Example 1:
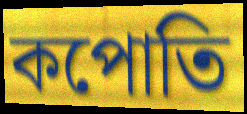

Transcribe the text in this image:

কপোতি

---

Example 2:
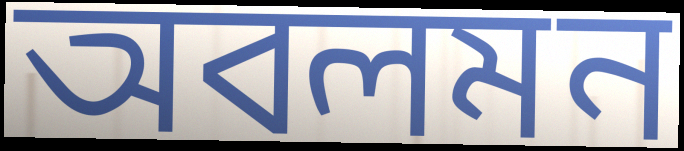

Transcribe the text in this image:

অবলমন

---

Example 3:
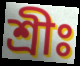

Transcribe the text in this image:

শ্রীঃ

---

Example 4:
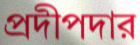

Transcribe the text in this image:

প্রদীপদার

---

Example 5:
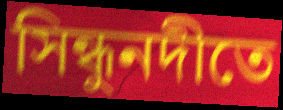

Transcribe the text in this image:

সিন্ধুনদীতে